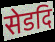
सेडदि